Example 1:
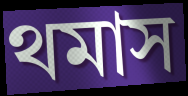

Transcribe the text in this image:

থমাস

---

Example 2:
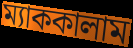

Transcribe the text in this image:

ম্যাককালাম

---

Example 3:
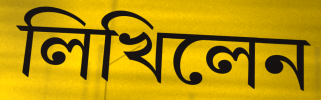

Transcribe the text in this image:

লিখিলেন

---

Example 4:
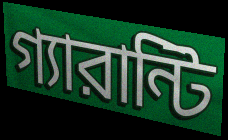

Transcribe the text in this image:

গ্যারান্টি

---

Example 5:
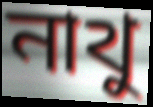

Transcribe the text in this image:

নাথু